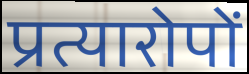
प्रत्यारोपों